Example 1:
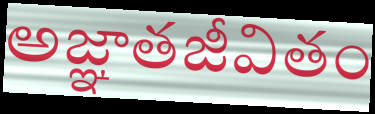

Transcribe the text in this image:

అజ్ఞాతజీవితం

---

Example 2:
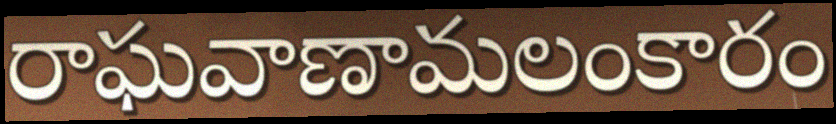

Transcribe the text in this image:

రాఘవాణామలంకారం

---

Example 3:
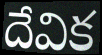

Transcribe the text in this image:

దేవిక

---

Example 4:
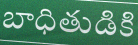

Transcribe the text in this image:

బాధితుడికి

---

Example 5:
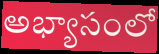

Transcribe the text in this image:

అభ్యాసంలో